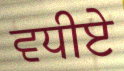
ਵਧੀਏ